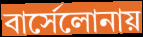
বার্সেলোনায়